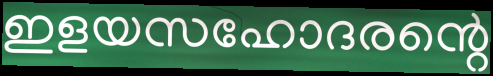
ഇളയസഹോദരന്റെ